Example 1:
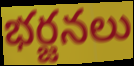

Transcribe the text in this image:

భర్జనలు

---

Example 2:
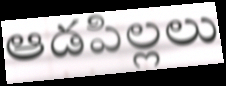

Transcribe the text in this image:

ఆడపిల్లలు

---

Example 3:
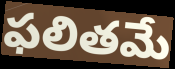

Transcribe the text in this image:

ఫలితమే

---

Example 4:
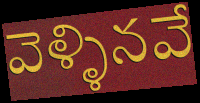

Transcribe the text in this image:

వెళ్ళినవే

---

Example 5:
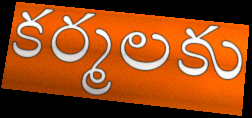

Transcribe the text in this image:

కర్మలకు